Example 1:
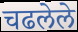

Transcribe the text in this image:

चढलेले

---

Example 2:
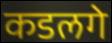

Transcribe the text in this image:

कडलगे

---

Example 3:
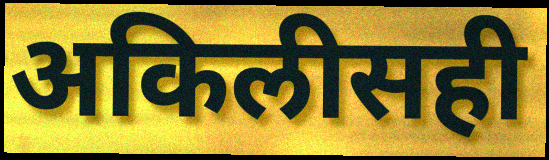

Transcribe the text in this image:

अकिलीसही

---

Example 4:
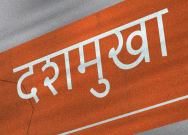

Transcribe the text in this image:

दशमुखा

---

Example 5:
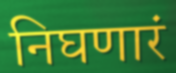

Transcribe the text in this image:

निघणारं